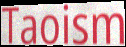
Taoism